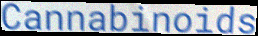
Cannabinoids